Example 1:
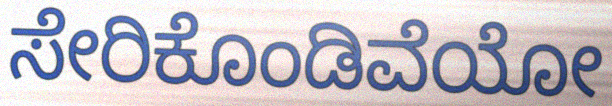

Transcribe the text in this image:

ಸೇರಿಕೊಂಡಿವೆಯೋ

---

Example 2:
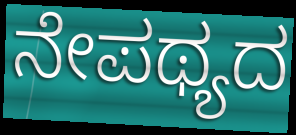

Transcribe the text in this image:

ನೇಪಥ್ಯದ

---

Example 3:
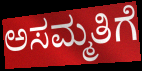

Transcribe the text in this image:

ಅಸಮ್ಮತಿಗೆ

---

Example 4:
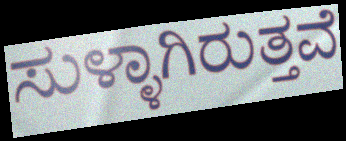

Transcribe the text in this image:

ಸುಳ್ಳಾಗಿರುತ್ತವೆ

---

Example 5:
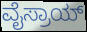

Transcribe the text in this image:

ವೈಸ್ರಾಯ್